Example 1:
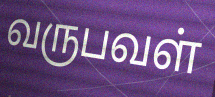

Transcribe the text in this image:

வருபவள்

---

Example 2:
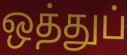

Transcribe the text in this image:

ஒத்துப்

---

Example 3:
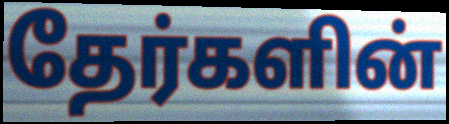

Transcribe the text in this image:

தேர்களின்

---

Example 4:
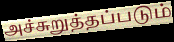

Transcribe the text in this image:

அச்சுறுத்தப்படும்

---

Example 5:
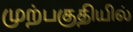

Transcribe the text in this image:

முற்பகுதியில்